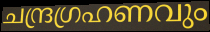
ചന്ദ്രഗ്രഹണവും